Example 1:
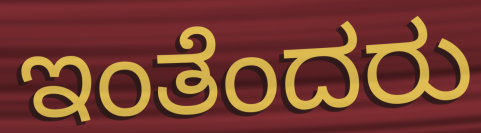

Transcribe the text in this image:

ಇಂತೆಂದರು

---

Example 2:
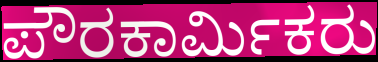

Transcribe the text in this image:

ಪೌರಕಾರ್ಮಿಕರು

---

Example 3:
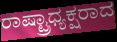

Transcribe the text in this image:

ರಾಷ್ಟ್ರಾಧ್ಯಕ್ಷರಾದ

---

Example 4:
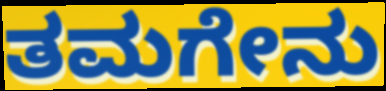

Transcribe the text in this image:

ತಮಗೇನು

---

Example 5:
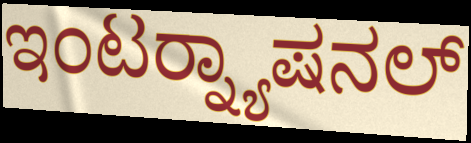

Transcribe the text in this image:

ಇಂಟರ್‍ನ್ಯಾಷನಲ್